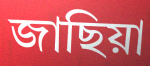
জাছিয়া